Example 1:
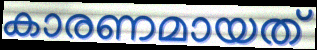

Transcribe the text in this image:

കാരണമായത്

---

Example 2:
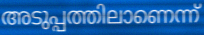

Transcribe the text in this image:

അടുപ്പത്തിലാണെന്ന്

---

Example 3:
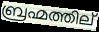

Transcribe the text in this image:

ബ്രഹ്മത്തില്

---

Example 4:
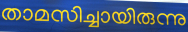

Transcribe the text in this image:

താമസിച്ചായിരുന്നു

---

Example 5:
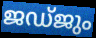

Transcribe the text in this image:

ജഡ്ജും